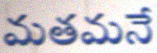
మతమనే